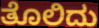
ತೊಲಿದು